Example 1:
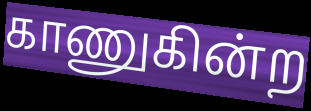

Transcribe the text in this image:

காணுகின்ற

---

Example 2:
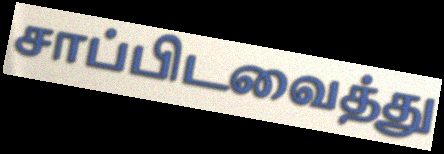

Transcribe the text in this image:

சாப்பிடவைத்து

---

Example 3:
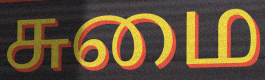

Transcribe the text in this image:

சுமை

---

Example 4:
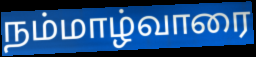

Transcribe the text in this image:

நம்மாழ்வாரை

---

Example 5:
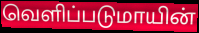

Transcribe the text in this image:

வெளிப்படுமாயின்